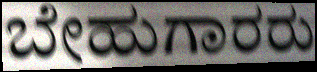
ಬೇಹುಗಾರರು